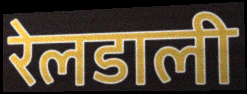
रेलडाली